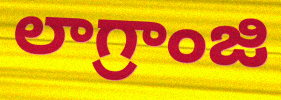
లాగ్రాంజి